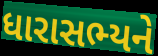
ધારાસભ્યને